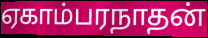
ஏகாம்பரநாதன்